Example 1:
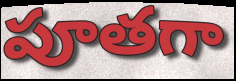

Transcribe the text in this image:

పూతగా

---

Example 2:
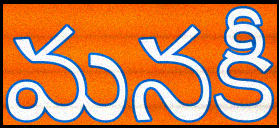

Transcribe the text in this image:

మనకీ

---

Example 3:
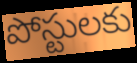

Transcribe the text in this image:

పోస్టులకు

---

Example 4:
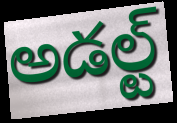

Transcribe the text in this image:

అడల్ట్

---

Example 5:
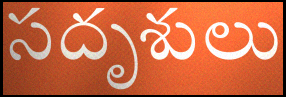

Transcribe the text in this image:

సదృశులు